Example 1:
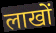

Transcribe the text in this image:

लाखों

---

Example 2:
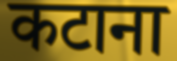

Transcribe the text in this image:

कटाना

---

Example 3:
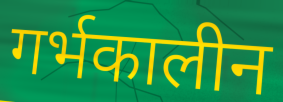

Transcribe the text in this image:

गर्भकालीन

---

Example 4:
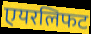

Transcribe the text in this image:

एयरलिफट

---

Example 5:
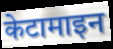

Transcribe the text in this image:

केटामाइन